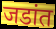
जडांत